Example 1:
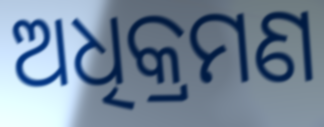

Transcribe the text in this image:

ଅଧିକ୍ରମଣ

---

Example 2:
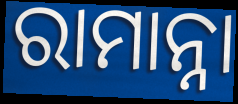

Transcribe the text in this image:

ରାମାନ୍ନା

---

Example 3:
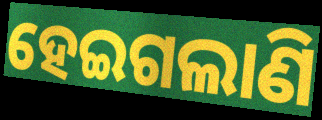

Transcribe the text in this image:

ହେଇଗଲାଣି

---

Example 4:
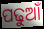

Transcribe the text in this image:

ପଢୁଆଁ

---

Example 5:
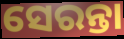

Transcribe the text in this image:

ସେରନ୍ତା